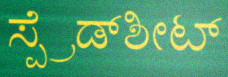
ಸ್ಪ್ರೆಡ್‌ಶೀಟ್